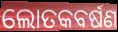
ଲୋତକବର୍ଷଣ